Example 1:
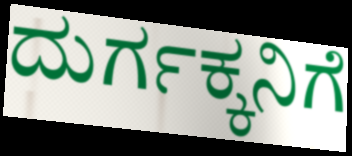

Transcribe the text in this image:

ದುರ್ಗಕ್ಕನಿಗೆ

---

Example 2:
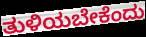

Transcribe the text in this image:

ತುಳಿಯಬೇಕೆಂದು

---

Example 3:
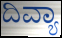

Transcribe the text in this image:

ದಿವ್ಯಾ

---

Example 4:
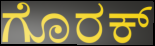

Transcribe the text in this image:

ಗೊರಕ್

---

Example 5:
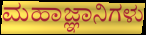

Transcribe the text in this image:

ಮಹಾಜ್ಞಾನಿಗಳು